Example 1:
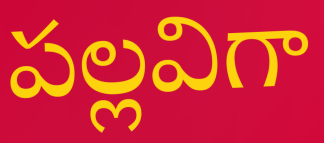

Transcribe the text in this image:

పల్లవిగా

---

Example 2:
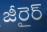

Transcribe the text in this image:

జీరైర్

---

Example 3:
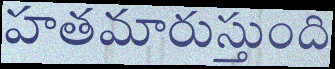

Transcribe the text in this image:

హతమారుస్తుంది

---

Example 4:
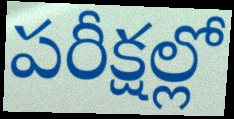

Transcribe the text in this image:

పరీక్షల్లో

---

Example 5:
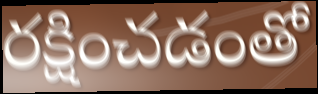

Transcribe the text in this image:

రక్షించడంతో